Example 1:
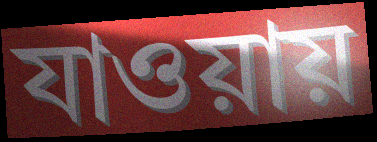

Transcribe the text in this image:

যাওয়ায়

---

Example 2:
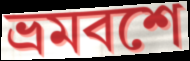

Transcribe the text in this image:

ভ্রমবশে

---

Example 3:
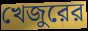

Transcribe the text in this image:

খেজুরের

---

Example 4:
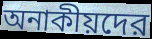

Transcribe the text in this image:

অনাকীয়দের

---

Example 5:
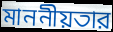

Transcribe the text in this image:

মাননীয়তার